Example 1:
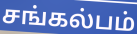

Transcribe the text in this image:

சங்கல்பம்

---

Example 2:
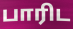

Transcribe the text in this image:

பாரிட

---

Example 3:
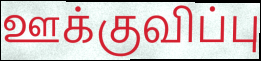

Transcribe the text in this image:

ஊக்குவிப்பு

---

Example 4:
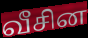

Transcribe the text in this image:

வீசின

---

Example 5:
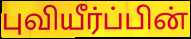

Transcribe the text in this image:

புவியீர்ப்பின்